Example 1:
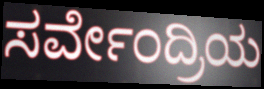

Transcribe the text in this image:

ಸರ್ವೇಂದ್ರಿಯ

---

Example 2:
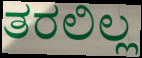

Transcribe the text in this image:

ತರಲಿಲ್ಲ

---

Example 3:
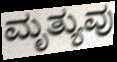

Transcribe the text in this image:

ಮೃತ್ಯುವು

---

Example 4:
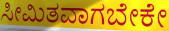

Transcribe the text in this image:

ಸೀಮಿತವಾಗಬೇಕೇ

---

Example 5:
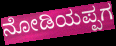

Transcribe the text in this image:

ನೋಡಿಯಪ್ಪಗ